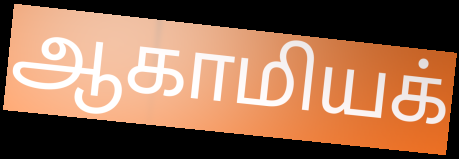
ஆகாமியக்